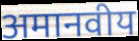
अमानवीय